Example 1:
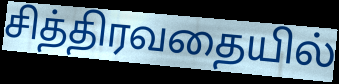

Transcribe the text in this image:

சித்திரவதையில்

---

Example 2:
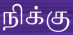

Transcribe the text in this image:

நிக்கு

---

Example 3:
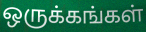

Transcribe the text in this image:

ஒருக்கங்கள்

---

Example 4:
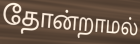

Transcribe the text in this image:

தோன்றாமல்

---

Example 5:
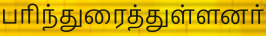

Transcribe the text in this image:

பரிந்துரைத்துள்ளனர்